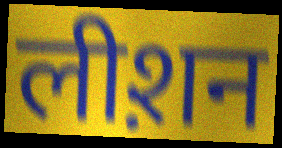
लीश़न